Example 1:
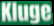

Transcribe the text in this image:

Kluge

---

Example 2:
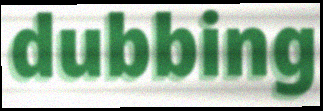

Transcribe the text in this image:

dubbing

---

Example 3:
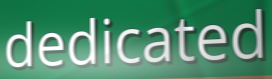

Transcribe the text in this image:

dedicated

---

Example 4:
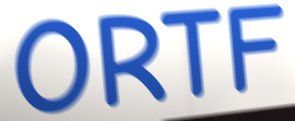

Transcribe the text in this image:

ORTF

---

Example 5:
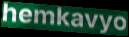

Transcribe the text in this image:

hemkavyo